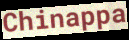
Chinappa